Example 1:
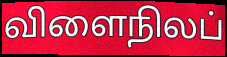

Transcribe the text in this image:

விளைநிலப்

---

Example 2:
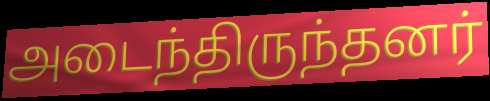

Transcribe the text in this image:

அடைந்திருந்தனர்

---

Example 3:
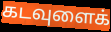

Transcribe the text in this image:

கடவுளைக்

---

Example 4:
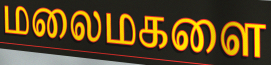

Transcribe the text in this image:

மலைமகளை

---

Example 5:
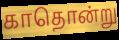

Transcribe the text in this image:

காதொன்று